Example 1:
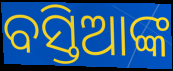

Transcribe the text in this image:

ବସ୍ତିଆଙ୍କ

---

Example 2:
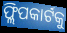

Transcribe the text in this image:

ଫ୍ଲିପକାର୍ଟକୁ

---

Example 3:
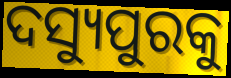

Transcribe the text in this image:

ଦସ୍ୟୁପୁରକୁ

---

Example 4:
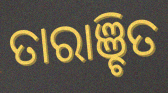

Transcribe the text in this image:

ତାରାଞ୍ଚିତ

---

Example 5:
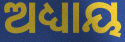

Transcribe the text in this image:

ଅଧ୍ୟାୟ